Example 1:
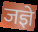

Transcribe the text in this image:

जज्ञे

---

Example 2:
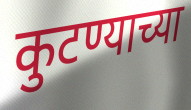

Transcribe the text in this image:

कुटण्याच्या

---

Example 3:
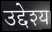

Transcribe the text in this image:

उद्देश्य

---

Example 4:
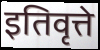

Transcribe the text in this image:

इतिवृत्ते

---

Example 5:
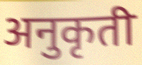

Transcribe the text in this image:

अनुकृती